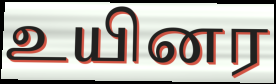
உயினர